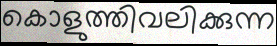
കൊളുത്തിവലിക്കുന്ന